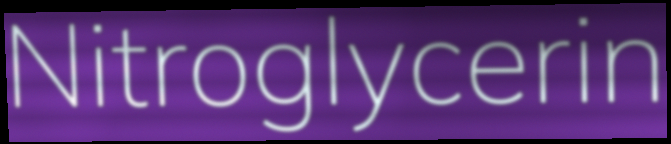
Nitroglycerin